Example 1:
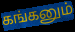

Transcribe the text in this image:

கங்கனும்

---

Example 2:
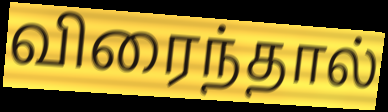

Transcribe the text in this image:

விரைந்தால்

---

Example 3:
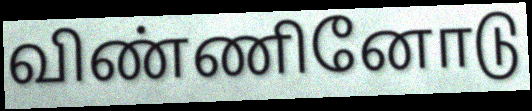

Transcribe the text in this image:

விண்ணினோடு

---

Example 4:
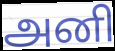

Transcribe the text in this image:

அனி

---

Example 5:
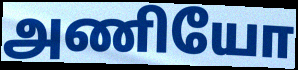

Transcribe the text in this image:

அணியோ